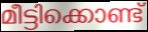
മീട്ടിക്കൊണ്ട്